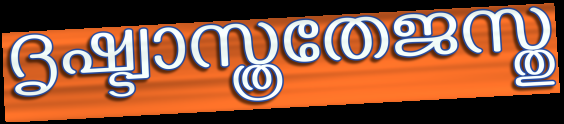
ദൃഷ്ട്വാസ്ത്രതേജസ്തു